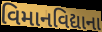
વિમાનવિદ્યાના